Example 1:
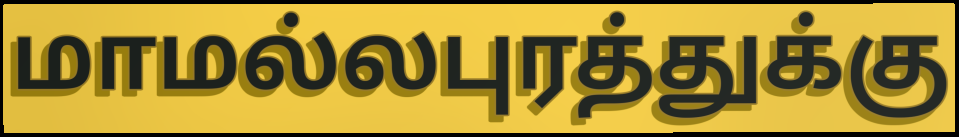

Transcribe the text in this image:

மாமல்லபுரத்துக்கு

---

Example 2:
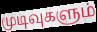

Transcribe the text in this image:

முடிவுகளும்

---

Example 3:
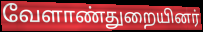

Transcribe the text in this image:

வேளாண்துறையினர்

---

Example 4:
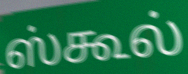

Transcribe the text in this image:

ஸ்கூல்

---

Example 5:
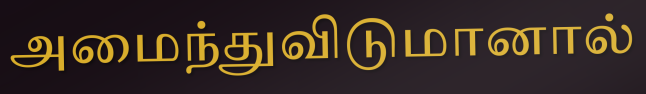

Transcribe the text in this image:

அமைந்துவிடுமானால்